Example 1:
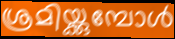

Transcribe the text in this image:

ശ്രമിയ്ക്കുമ്പോൾ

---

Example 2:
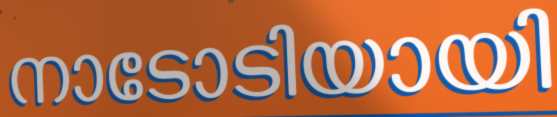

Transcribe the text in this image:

നാടോടിയായി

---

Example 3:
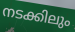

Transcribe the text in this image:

നടക്കിലും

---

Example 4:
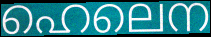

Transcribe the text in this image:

ഹെലെന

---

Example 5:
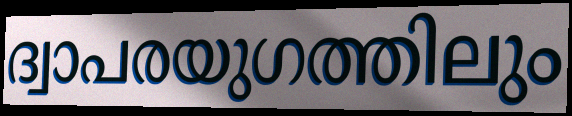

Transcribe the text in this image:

ദ്വാപരയുഗത്തിലും